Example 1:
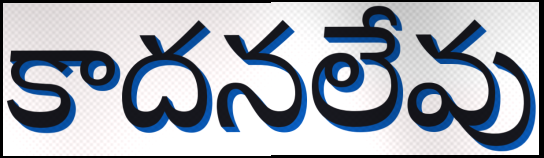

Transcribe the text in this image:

కాదనలేవు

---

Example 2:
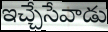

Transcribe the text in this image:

ఇచ్చేసేవాడు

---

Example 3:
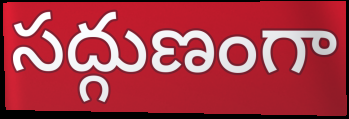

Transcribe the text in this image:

సద్గుణంగా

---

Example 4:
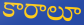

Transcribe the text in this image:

కారాలూ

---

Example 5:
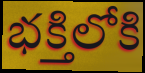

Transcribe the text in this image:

భక్తిలోకి